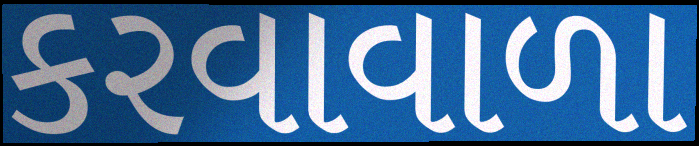
કરવાવાળા